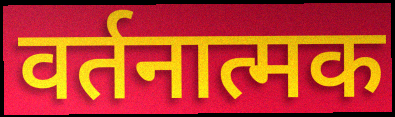
वर्तनात्मक